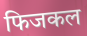
फिजकल